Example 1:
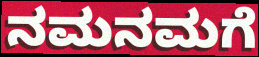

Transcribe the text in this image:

ನಮನಮಗೆ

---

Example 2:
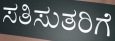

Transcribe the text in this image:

ಸತಿಸುತರಿಗೆ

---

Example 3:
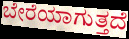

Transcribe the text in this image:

ಬೇರೆಯಾಗುತ್ತದೆ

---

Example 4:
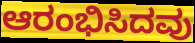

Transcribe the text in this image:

ಆರಂಭಿಸಿದವು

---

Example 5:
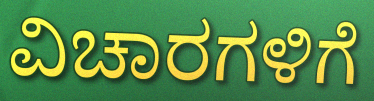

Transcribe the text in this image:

ವಿಚಾರಗಳಿಗೆ